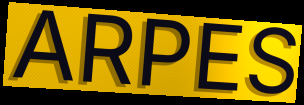
ARPES